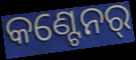
କଣ୍ଟେନର୍